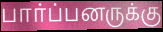
பார்ப்பனருக்கு